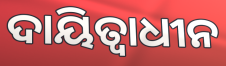
ଦାୟିତ୍ୱାଧୀନ